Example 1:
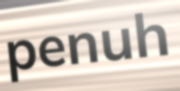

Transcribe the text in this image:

penuh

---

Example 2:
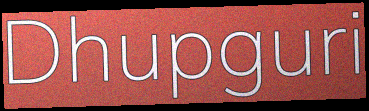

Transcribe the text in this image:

Dhupguri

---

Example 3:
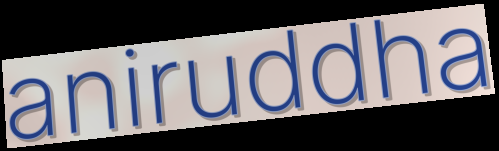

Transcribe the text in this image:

aniruddha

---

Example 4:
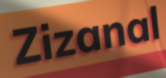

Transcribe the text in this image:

Zizanal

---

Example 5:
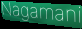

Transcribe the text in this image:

Nagamani